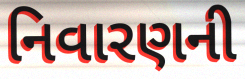
નિવારણની